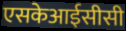
एसकेआईसीसी